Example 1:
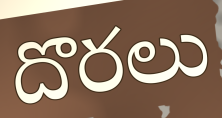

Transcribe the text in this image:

దొరలు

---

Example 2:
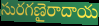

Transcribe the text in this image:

సురగణైరాదాయ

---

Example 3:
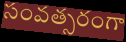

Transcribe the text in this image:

సంవత్సరంగా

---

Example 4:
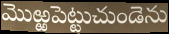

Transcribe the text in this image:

మొఱ్ఱపెట్టుచుండెను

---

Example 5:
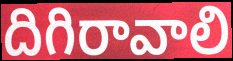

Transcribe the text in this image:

దిగిరావాలి